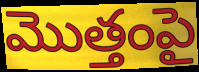
మొత్తంపై